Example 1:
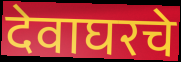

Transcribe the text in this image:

देवाघरचे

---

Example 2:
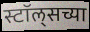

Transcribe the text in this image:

स्टॉल्सच्या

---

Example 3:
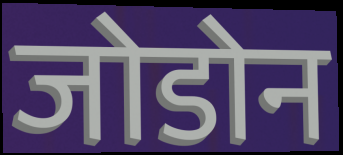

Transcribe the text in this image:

जोडोन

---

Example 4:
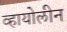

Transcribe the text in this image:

व्हायोलीन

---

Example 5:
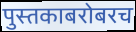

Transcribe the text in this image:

पुस्तकाबरोबरच